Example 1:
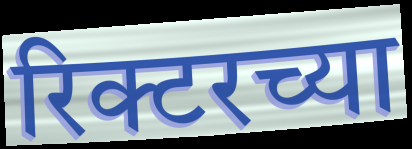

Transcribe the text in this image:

रिक्टरच्या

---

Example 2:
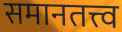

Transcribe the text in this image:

समानतत्त्व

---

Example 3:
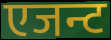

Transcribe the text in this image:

एजन्ट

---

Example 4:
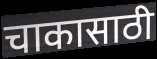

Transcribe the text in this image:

चाकासाठी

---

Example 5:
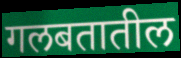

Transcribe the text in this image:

गलबतातील